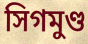
সিগমুণ্ড